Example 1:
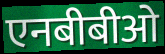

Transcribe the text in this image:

एनबीबीओ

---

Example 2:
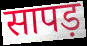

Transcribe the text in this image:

सापड़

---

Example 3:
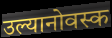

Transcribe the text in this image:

उल्यानोवस्क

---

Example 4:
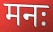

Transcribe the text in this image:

मनः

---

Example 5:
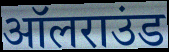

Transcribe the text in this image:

ऑलराउंड